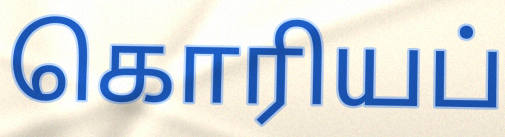
கொரியப்